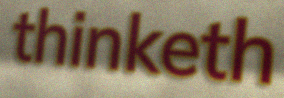
thinketh